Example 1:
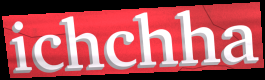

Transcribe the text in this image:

ichchha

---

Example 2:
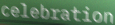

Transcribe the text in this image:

celebration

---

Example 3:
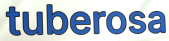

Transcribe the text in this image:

tuberosa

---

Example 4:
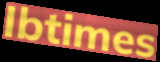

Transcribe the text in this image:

Ibtimes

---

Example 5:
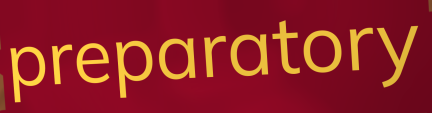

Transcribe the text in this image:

preparatory